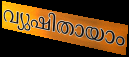
വ്യുഷിതായാം